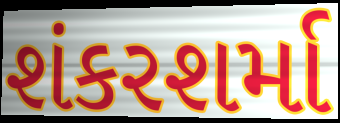
શંકરશર્મા